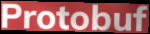
Protobuf